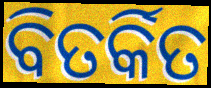
ବିତର୍କିତ